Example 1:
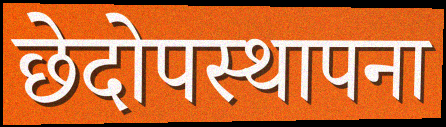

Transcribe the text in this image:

छेदोपस्थापना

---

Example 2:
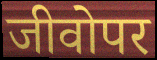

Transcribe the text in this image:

जीवोपर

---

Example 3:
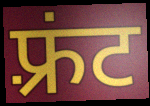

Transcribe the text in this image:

फ़्रंट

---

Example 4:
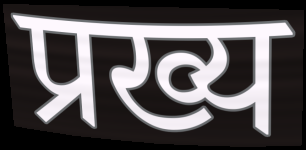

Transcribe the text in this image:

प्रख्य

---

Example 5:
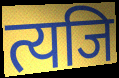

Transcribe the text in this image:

त्यजि